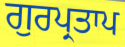
ਗੁਰਪ੍ਰਤਾਪ